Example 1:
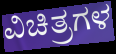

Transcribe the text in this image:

ವಿಚಿತ್ರಗಳ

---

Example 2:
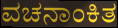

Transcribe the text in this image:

ವಚನಾಂಕಿತ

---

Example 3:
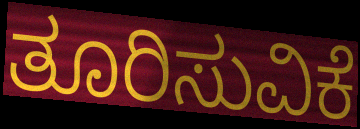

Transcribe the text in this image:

ತೂರಿಸುವಿಕೆ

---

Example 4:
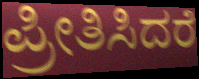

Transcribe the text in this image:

ಪ್ರೀತಿಸಿದರೆ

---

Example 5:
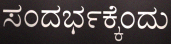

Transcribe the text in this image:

ಸಂದರ್ಭಕ್ಕೆಂದು